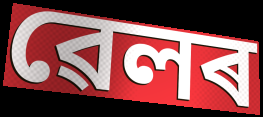
ৱেলৰ